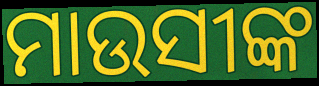
ମାଉସୀଙ୍କ